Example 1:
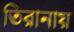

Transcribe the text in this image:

তিরানায়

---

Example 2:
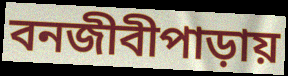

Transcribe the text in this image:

বনজীবীপাড়ায়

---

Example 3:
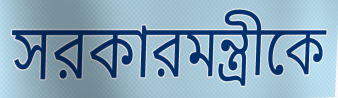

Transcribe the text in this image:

সরকারমন্ত্রীকে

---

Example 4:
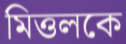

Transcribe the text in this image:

মিত্তলকে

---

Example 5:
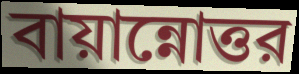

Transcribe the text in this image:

বায়ান্নোত্তর